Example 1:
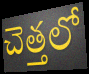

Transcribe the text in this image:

చెత్తలో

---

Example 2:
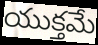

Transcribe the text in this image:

యుక్తమే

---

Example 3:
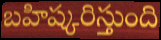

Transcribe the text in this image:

బహిష్కరిస్తుంది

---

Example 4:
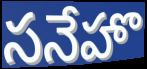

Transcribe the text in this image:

సనేహొ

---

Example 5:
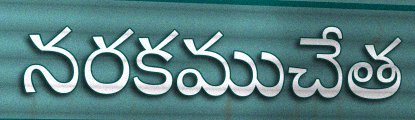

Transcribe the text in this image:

నరకముచేత